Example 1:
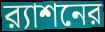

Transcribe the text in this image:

র‍্যাশনের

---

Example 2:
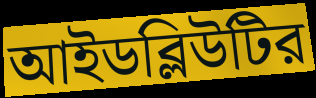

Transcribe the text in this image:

আইডব্লিউটির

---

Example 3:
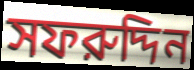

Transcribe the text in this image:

সফরুদ্দিন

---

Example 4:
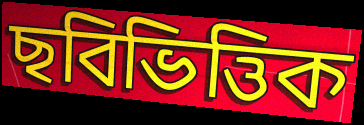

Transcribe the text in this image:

ছবিভিত্তিক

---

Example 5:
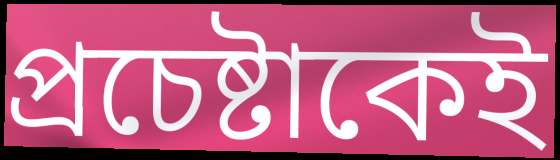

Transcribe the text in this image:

প্রচেষ্টাকেই